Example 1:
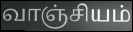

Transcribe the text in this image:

வாஞ்சியம்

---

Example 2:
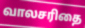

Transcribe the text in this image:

வாலசரிதை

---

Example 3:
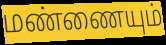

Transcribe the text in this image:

மண்ணையும்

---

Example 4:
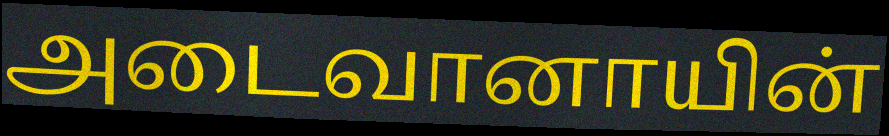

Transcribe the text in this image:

அடைவானாயின்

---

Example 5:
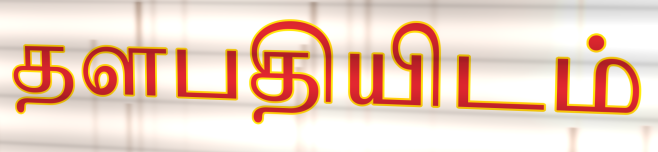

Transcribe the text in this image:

தளபதியிடம்